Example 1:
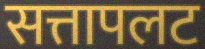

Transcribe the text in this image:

सत्तापलट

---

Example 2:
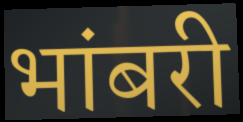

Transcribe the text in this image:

भांबरी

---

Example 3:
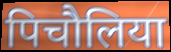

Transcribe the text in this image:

पिचौलिया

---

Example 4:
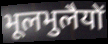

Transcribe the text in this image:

भूलभुलैयों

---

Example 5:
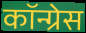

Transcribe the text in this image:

कॉन्ग्रेस